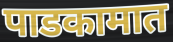
पाडकामात